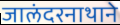
जालंदरनाथाने